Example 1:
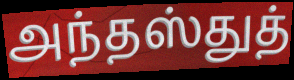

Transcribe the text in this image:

அந்தஸ்துத்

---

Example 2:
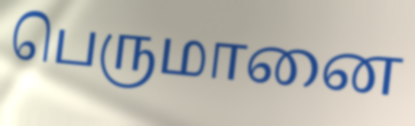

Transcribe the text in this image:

பெருமானை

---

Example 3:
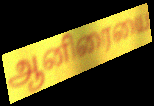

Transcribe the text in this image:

ஆனிரையை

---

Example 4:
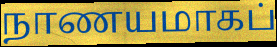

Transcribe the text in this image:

நாணயமாகப்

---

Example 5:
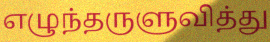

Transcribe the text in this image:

எழுந்தருளுவித்து